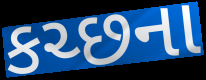
કચ્છના